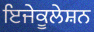
ਇਜੇਕੂਲੇਸ਼ਨ